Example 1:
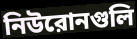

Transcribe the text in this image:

নিউরোনগুলি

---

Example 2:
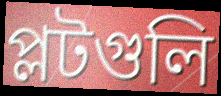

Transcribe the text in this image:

প্লটগুলি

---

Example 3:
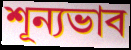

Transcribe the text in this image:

শূন্যভাব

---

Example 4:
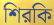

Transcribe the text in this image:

শিরকি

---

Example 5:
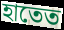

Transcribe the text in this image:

হাতেত